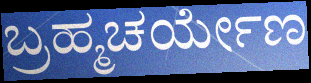
ಬ್ರಹ್ಮಚರ್ಯೇಣ